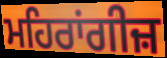
ਮਹਿਰਾਂਗੀਜ਼